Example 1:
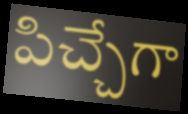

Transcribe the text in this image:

పిచ్చేగా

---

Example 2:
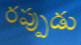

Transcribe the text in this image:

రప్పుడు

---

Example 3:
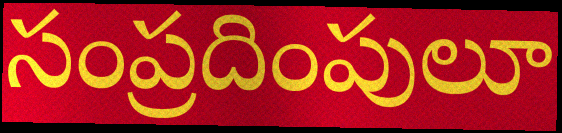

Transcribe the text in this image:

సంప్రదింపులూ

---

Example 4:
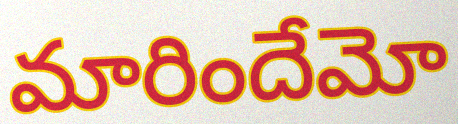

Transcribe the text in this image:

మారిందేమో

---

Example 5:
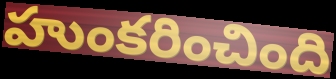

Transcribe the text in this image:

హుంకరించింది